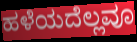
ಹಳೆಯದೆಲ್ಲವೂ